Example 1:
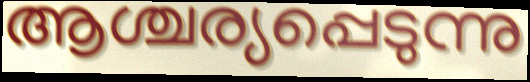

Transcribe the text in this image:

ആശ്ചര്യപ്പെടുന്നു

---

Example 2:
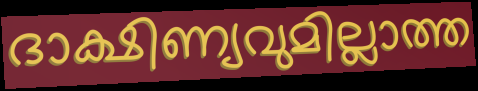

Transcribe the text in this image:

ദാക്ഷിണ്യവുമില്ലാത്ത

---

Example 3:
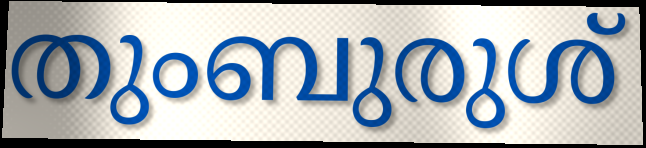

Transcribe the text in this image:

തുംബുരുശ്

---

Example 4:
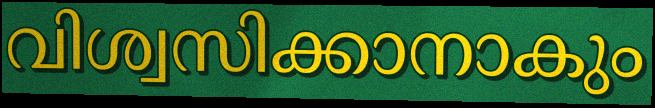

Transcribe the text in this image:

വിശ്വസിക്കാനാകും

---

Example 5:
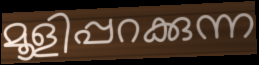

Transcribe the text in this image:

മൂളിപ്പറക്കുന്ന